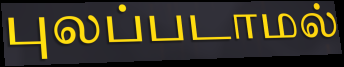
புலப்படாமல்